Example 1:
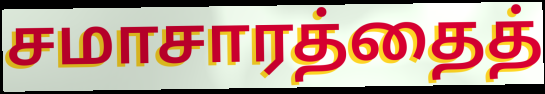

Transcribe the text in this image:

சமாசாரத்தைத்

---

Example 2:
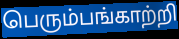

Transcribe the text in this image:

பெரும்பங்காற்றி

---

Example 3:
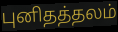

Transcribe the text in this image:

புனிதத்தலம்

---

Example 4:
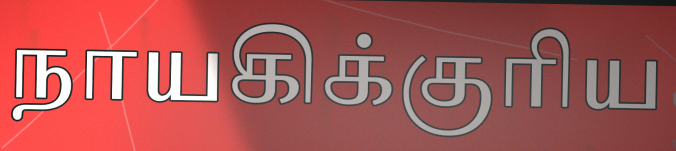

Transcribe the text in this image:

நாயகிக்குரிய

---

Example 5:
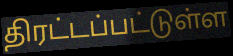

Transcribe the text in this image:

திரட்டப்பட்டுள்ள